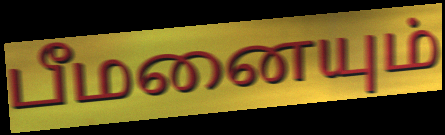
பீமனையும்